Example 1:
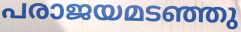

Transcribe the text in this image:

പരാജയമടഞ്ഞു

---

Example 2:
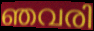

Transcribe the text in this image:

ഞവരി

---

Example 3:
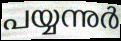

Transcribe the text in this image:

പയ്യന്നുർ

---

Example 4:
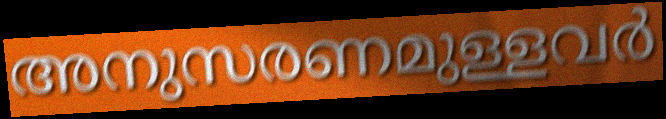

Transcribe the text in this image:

അനുസരണമുള്ളവർ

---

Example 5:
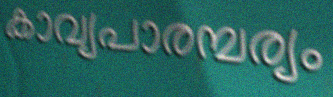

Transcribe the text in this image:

കാവ്യപാരമ്പര്യം